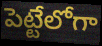
పెట్టేలోగా